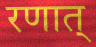
रणात्